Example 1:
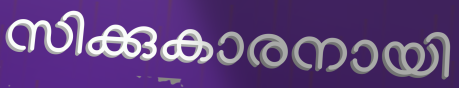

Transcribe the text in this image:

സിക്കുകാരനായി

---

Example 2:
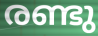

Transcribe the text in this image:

രണ്ടു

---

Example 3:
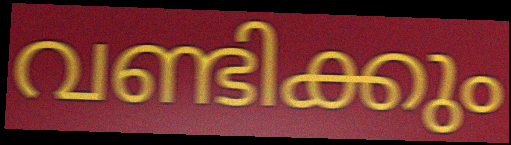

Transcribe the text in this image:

വണ്ടിക്കും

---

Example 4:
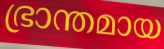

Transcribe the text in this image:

ഭ്രാന്തമായ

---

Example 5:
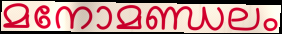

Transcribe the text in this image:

മനോമണ്ഡലം